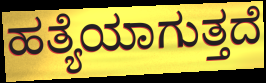
ಹತ್ಯೆಯಾಗುತ್ತದೆ